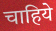
चाहिये